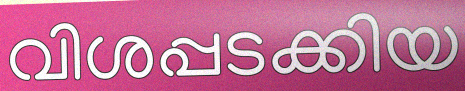
വിശപ്പടക്കിയ